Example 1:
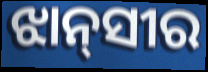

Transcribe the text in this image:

ଝାନ୍‌ସୀର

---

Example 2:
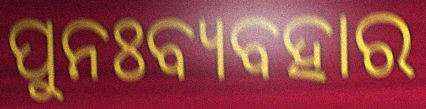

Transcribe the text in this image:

ପୁନଃବ୍ୟବହାର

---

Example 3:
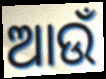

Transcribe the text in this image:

ଆଉଁ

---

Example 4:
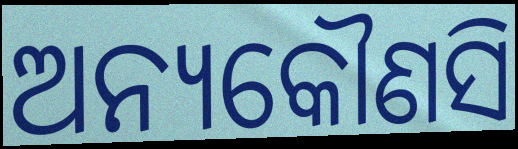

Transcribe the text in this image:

ଅନ୍ୟକୌଣସି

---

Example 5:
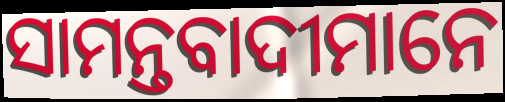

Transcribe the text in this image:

ସାମନ୍ତବାଦୀମାନେ